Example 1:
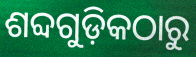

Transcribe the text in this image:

ଶବ୍ଦଗୁଡ଼ିକଠାରୁ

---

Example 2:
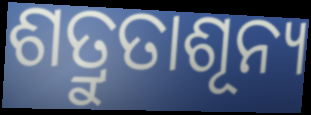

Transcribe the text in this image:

ଶତ୍ରୁତାଶୂନ୍ୟ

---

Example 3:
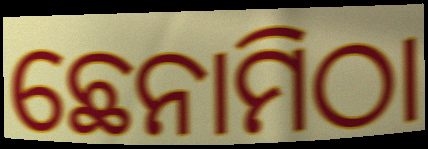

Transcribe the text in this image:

ଛେନାମିଠା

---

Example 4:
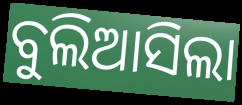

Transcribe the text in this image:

ବୁଲିଆସିଲା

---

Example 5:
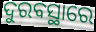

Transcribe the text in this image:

ଦୁରବସ୍ଥାରେ